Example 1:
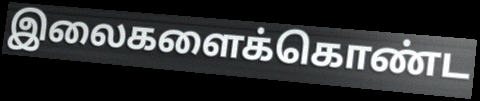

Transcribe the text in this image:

இலைகளைக்கொண்ட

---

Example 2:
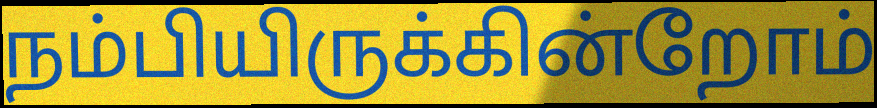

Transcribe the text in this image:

நம்பியிருக்கின்றோம்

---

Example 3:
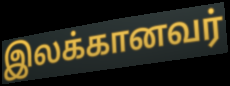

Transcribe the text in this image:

இலக்கானவர்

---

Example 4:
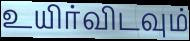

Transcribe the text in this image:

உயிர்விடவும்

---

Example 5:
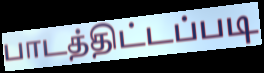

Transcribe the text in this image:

பாடத்திட்டப்படி